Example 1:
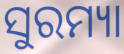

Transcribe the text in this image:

ସୁରମ୍ୟା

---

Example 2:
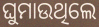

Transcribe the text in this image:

ଘୁମାଉଥିଲେ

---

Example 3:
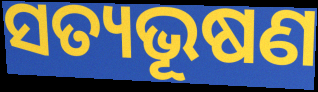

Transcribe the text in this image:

ସତ୍ୟଭୂଷଣ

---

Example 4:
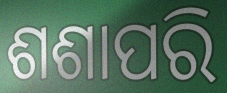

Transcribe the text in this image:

ଶଶାପରି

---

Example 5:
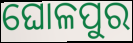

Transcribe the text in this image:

ଘୋଳପୁର